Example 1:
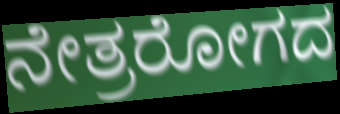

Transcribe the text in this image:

ನೇತ್ರರೋಗದ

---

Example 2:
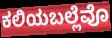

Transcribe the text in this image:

ಕಲಿಯಬಲ್ಲೆವೊ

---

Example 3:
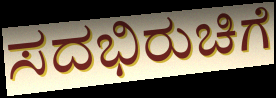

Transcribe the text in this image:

ಸದಭಿರುಚಿಗೆ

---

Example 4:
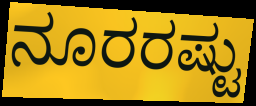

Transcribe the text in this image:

ನೂರರಷ್ಟು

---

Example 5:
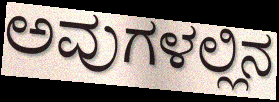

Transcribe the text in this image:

ಅವುಗಳಲ್ಲಿನ